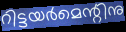
റിട്ടയർമെന്റിനു